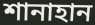
শানাহান